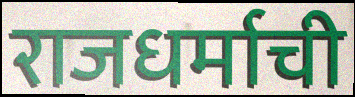
राजधर्माची